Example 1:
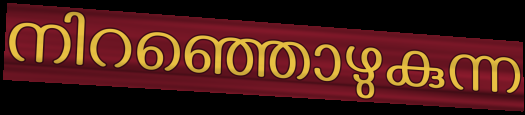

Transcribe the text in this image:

നിറഞ്ഞൊഴുകുന്ന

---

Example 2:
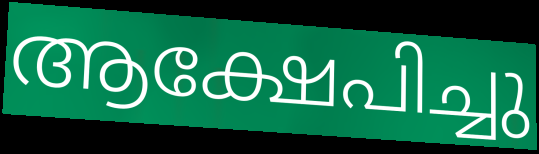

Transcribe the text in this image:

ആക്ഷേപിച്ചു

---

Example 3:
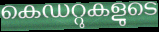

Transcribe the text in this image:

കെഡറ്റുകളുടെ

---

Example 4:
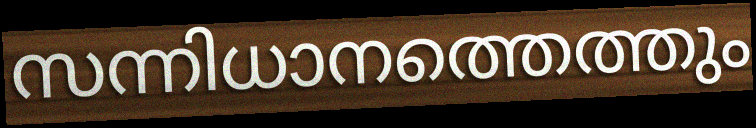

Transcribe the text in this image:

സന്നിധാനത്തെത്തും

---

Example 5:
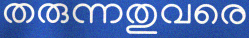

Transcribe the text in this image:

തരുന്നതുവരെ